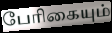
பேரிகையும்